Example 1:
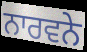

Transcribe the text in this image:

ਨਾਰਵਨੇ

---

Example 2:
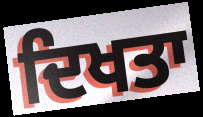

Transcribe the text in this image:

ਦਿਖਤਾ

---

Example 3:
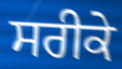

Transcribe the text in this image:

ਸਰੀਕੇ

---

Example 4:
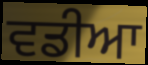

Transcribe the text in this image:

ਵਡੀਆ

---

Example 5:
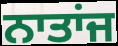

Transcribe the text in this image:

ਨਾਤਾਂਜ